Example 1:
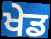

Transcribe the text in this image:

ਖੇਡ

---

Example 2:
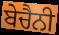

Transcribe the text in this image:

ਬੇਚੈਨੀ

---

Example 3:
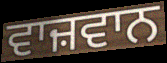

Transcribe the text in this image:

ਵਾਜ਼ਵਾਨ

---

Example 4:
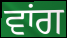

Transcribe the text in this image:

ਵਾਂਗ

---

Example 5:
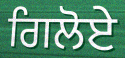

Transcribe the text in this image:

ਗਿਲੋਏ